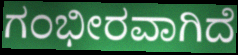
ಗಂಭೀರವಾಗಿದೆ